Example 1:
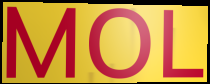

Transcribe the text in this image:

MOL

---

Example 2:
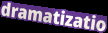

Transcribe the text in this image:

dramatizatio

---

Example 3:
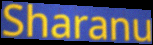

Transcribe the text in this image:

Sharanu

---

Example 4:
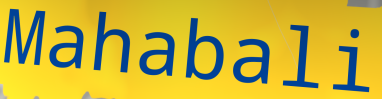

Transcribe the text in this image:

Mahabali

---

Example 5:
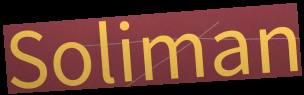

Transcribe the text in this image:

Soliman